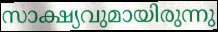
സാക്ഷ്യവുമായിരുന്നു